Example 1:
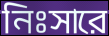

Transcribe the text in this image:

নিঃসারে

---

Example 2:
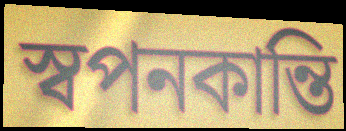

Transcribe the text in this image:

স্বপনকান্তি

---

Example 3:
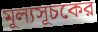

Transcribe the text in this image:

মূল্যসূচকের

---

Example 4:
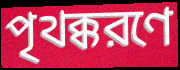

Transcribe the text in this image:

পৃথক্করণে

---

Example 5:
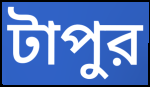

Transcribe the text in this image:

টাপুর